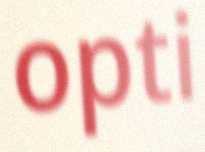
opti